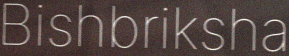
Bishbriksha